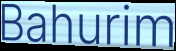
Bahurim